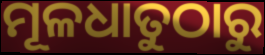
ମୂଳଧାତୁଠାରୁ